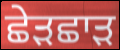
ਛੇੜਛਾੜ